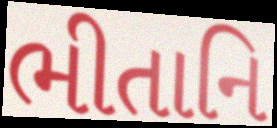
ભીતાનિ